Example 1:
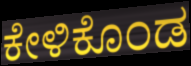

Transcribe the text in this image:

ಕೇಳಿಕೊಂಡ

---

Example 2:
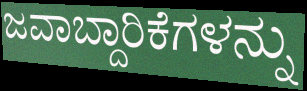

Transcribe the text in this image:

ಜವಾಬ್ದಾರಿಕೆಗಳನ್ನು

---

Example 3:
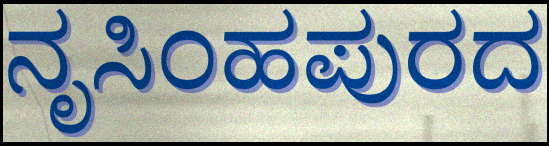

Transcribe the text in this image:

ನೃಸಿಂಹಪುರದ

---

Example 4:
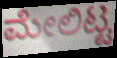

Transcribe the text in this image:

ಮೇಲಿಟ್ಟ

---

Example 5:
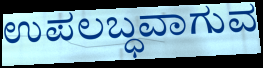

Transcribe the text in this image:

ಉಪಲಬ್ಧವಾಗುವ